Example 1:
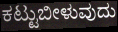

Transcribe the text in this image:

ಕಟ್ಟುಬೀಳುವುದು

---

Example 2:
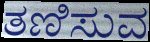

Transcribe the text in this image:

ತಣಿಸುವ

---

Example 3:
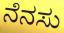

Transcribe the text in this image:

ನೆನಸು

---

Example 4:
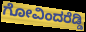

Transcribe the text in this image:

ಗೋವಿಂದರೆಡ್ಡಿ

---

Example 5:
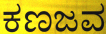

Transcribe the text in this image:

ಕಣಜವ